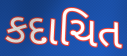
કદાચિત